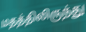
மதத்திலிருந்து